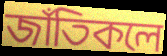
জাঁতিকলে